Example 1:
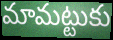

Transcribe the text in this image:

మామట్టుకు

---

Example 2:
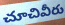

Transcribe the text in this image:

చూచివీరు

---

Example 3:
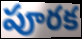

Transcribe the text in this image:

పూరక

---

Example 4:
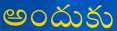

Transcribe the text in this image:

అందుకు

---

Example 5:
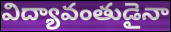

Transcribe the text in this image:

విద్యావంతుడైనా